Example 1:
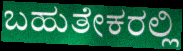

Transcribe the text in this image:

ಬಹುತೇಕರಲ್ಲಿ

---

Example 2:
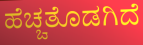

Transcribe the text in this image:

ಹೆಚ್ಚತೊಡಗಿದೆ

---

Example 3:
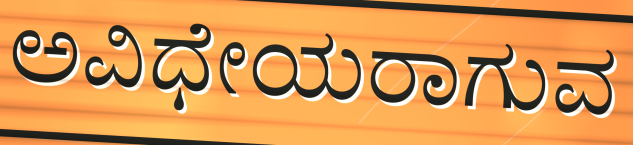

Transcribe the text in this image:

ಅವಿಧೇಯರಾಗುವ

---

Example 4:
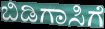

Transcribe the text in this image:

ಬಿಡಿಗಾಸಿಗೆ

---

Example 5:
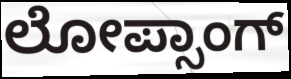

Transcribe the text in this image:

ಲೋಪ್ಸಾಂಗ್